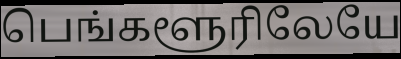
பெங்களூரிலேயே